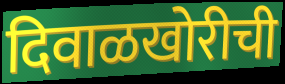
दिवाळखोरीची